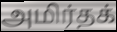
அமிர்தக்